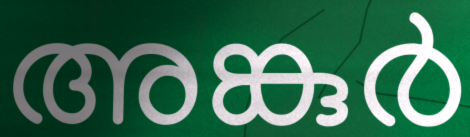
അങ്കുർ